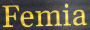
Femia